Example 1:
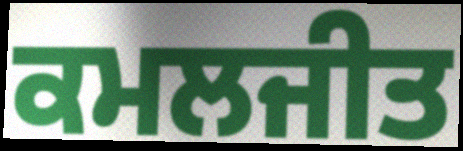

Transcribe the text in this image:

ਕਮਲਜੀਤ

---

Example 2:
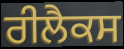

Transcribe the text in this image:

ਰੀਲੈਕਸ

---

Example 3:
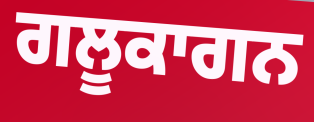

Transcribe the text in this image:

ਗਲੂਕਾਗਨ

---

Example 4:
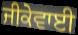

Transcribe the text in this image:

ਜੀਕੇਵਾਈ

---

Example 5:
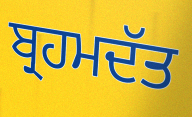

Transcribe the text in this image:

ਬ੍ਰਹਮਦੱਤ